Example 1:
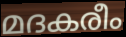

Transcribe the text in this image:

മദകരീം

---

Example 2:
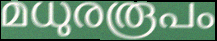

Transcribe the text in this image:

മധുരരൂപം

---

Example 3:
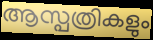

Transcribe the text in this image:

ആസ്പത്രികളും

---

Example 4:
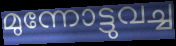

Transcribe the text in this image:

മുന്നോട്ടുവച്ച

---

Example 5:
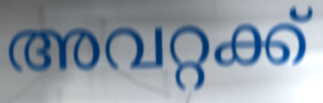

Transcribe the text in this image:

അവറ്റക്ക്